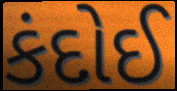
કંદોઈ